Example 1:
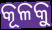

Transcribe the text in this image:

କୂଳକୁ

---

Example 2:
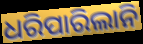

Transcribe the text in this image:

ଧରିପାରିଲାନି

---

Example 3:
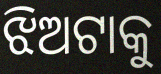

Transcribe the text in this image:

ଝିଅଟାକୁ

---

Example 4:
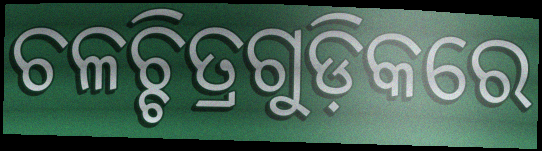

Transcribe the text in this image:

ଚଳଚ୍ଚିତ୍ରଗୁଡ଼ିକରେ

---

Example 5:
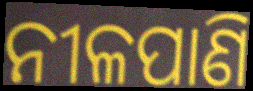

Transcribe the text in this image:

ନୀଳପାଣି